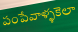
పంపేవాళ్ళకెలా